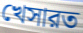
খেসারত